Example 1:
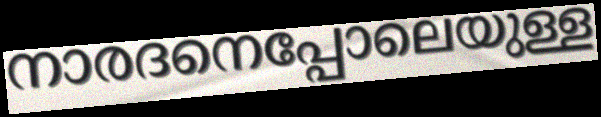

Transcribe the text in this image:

നാരദനെപ്പോലെയുള്ള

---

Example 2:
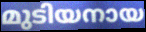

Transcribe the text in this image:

മുടിയനായ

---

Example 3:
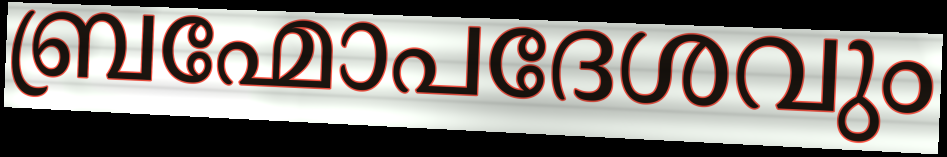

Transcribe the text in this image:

ബ്രഹ്മോപദേശവും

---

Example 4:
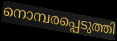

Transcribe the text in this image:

നൊമ്പരപ്പെടുത്തി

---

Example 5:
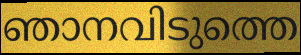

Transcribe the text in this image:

ഞാനവിടുത്തെ